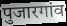
पुजारगांव